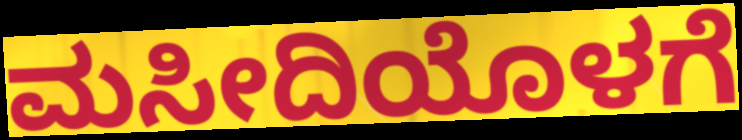
ಮಸೀದಿಯೊಳಗೆ